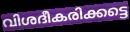
വിശദീകരിക്കട്ടെ